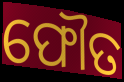
ଫୌତ